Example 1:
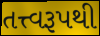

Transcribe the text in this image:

તત્ત્વરૂપથી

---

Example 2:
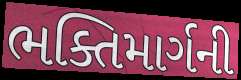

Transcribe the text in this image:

ભક્તિમાર્ગની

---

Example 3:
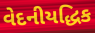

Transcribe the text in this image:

વેદનીયદ્ધિક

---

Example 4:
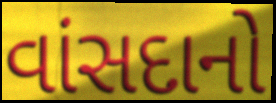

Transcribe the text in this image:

વાંસદાનો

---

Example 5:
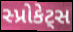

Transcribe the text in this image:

સ્પ્રોકેટ્સ